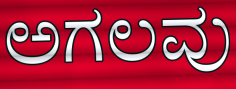
ಅಗಲವು